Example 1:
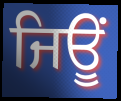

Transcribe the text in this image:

ਜਿਊਂ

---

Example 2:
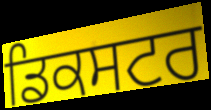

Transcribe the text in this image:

ਡਿਕਸਟਰ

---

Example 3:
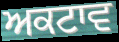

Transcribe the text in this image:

ਅਕਟਾਵ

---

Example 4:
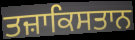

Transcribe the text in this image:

ਤਜ਼ਾਕਿਸਤਾਨ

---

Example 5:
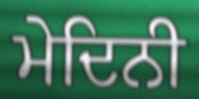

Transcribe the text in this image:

ਮੇਦਿਨੀ